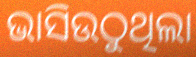
ଭାସିଉଠୁଥିଲା